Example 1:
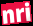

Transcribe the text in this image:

nri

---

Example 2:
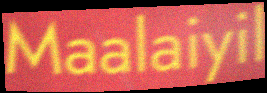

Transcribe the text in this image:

Maalaiyil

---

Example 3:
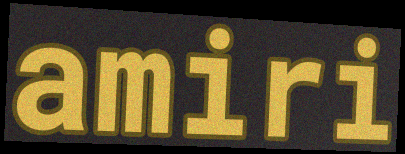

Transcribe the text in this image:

amiri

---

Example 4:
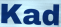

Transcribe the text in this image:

Kad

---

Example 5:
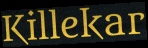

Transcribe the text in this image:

Killekar